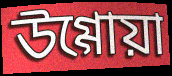
উগ্গোয়া